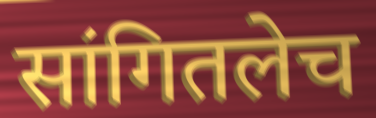
सांगितलेच